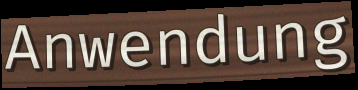
Anwendung